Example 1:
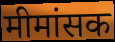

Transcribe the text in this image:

मीमांसक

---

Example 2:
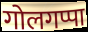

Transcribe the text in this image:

गोलगप्पा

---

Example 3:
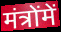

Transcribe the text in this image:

मंत्रोंमें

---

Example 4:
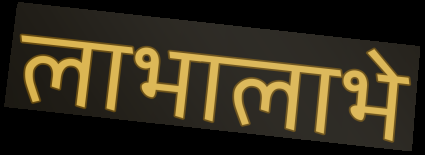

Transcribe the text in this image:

लाभालाभे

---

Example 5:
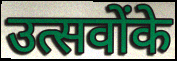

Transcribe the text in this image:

उत्सवोंके